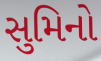
સુમિનો